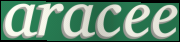
aracee